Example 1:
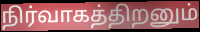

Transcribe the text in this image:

நிர்வாகத்திறனும்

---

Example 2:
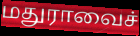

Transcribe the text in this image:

மதுராவைச்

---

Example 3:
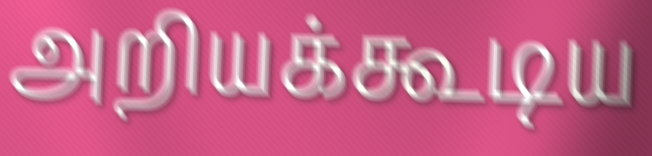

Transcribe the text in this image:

அறியக்கூடிய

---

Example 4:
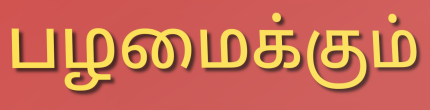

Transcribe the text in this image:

பழமைக்கும்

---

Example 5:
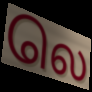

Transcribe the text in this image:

லெ